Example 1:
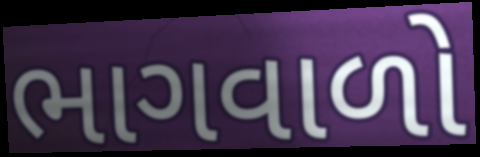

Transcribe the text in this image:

ભાગવાળો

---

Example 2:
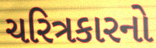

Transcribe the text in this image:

ચરિત્રકારનો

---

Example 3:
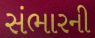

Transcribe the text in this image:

સંભારની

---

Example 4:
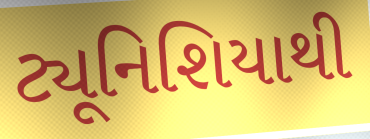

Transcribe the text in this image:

ટ્યૂનિશિયાથી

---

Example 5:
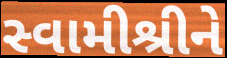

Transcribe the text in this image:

સ્વામીશ્રીને